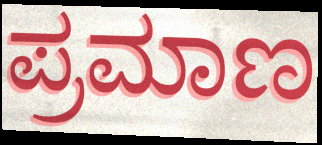
ಪ್ರಮಾಣ